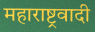
महाराष्ट्रवादी